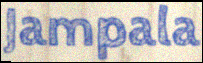
Jampala